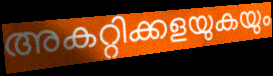
അകറ്റിക്കളയുകയും